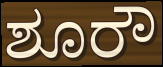
ಶೂರೌ